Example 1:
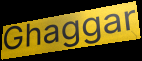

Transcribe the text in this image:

Ghaggar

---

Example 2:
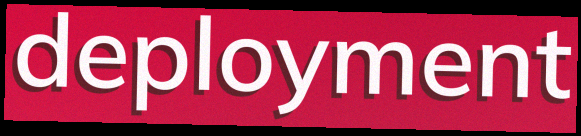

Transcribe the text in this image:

deployment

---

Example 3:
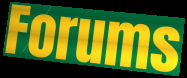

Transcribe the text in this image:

Forums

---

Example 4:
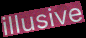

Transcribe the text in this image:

illusive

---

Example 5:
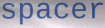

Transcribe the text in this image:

spacer